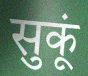
सुकूं